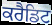
ਕਰੈਡਿਟ